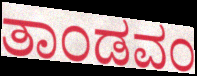
ತಾಂಡವಂ